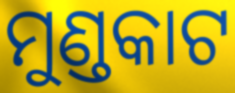
ମୁଣ୍ଡକାଟ